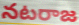
నటరాజ